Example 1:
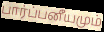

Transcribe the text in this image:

பார்ப்பனீயமும்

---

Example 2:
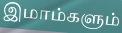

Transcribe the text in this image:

இமாம்களும்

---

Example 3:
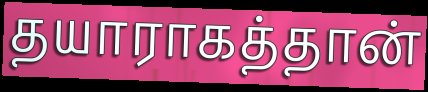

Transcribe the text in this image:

தயாராகத்தான்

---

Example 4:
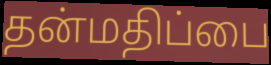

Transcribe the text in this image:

தன்மதிப்பை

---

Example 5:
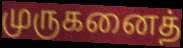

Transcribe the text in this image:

முருகனைத்